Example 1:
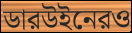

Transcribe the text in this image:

ডারউইনেরও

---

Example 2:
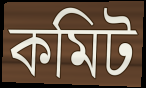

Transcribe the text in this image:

কমিট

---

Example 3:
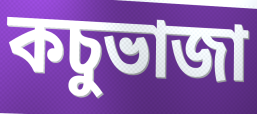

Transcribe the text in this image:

কচুভাজা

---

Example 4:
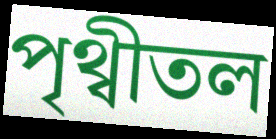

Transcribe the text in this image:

পৃথ্বীতল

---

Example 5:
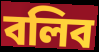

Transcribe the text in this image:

বলিব